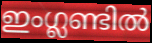
ഇംഗ്ലണ്ടിൽ